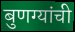
बुणग्यांची